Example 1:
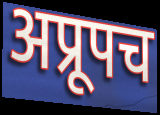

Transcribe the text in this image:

अप्रूपच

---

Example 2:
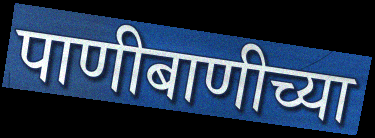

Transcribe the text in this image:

पाणीबाणीच्या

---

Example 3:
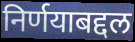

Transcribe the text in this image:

निर्णयाबद्दल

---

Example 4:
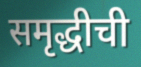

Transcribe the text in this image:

समृद्धीची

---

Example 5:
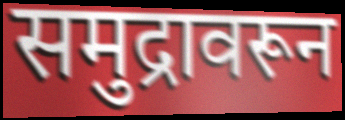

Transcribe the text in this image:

समुद्रावरून